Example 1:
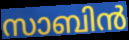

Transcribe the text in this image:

സാബിൻ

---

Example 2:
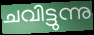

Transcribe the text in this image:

ചവിട്ടുന്നു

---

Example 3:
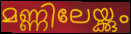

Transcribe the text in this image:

മണ്ണിലേയ്ക്കും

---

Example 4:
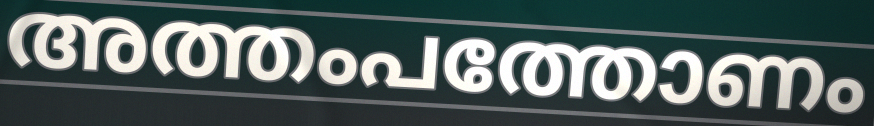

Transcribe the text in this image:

അത്തംപത്തോണം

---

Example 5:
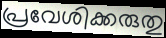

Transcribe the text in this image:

പ്രവേശിക്കരുതു